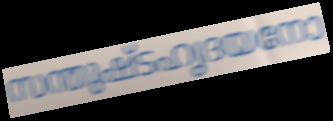
സന്തുഷ്ടഹൃദയനോ